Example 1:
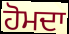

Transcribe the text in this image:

ਹੋਮਦਾ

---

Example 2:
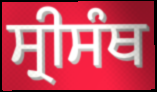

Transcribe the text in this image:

ਸ੍ਰੀਸੰਥ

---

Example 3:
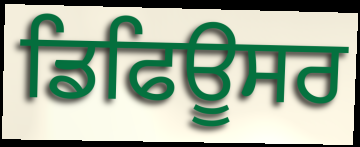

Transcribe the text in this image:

ਡਿਫਿਊਸਰ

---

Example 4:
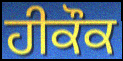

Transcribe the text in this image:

ਹੀਕੌਕ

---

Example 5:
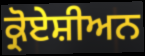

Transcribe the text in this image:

ਕ੍ਰੋਏਸ਼ੀਅਨ